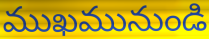
ముఖమునుండి